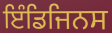
ਇੰਡਿਜਿਨਸ